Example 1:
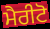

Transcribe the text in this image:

ਮੈਰੀਟੋ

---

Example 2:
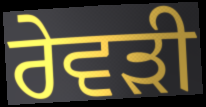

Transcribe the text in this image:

ਰੇਵੜੀ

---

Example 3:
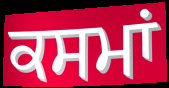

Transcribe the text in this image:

ਕਸਮਾਂ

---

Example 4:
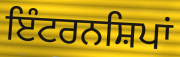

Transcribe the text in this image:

ਇੰਟਰਨਸ਼ਿਪਾਂ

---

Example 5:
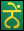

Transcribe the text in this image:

ਨੇਂ